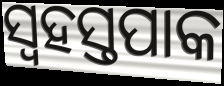
ସ୍ୱହସ୍ତପାକ